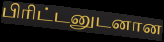
பிரிட்டனுடனான